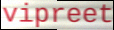
vipreet